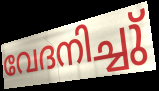
വേദനിച്ചു്